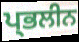
ਪ੍ਭਲੀਨ